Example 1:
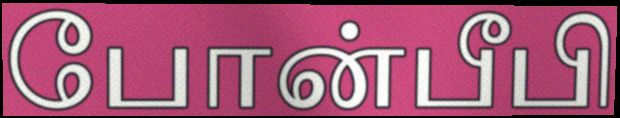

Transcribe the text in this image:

போன்பீபி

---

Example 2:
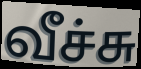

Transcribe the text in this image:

வீச்சு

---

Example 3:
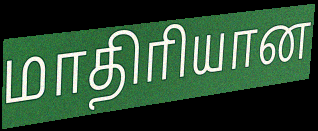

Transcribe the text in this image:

மாதிரியான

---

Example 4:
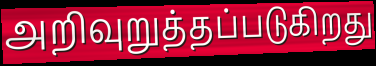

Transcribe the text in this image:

அறிவுறுத்தப்படுகிறது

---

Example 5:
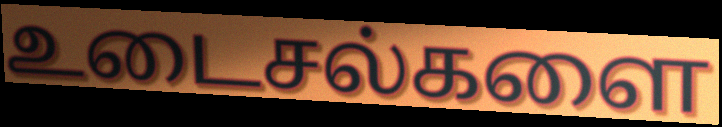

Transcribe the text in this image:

உடைசல்களை